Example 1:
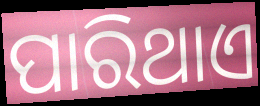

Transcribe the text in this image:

ପାରିଥାଏ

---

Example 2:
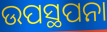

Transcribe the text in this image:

ଉପସ୍ଥପନା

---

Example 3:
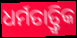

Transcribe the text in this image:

ଧର୍ମତାତ୍ତ୍ଵିକ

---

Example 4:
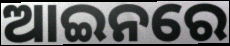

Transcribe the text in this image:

ଆଇନରେ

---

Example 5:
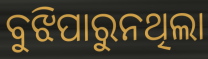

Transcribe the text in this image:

ବୁଝିପାରୁନଥିଲା